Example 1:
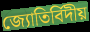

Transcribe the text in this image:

জ্যোতির্বিদীয়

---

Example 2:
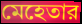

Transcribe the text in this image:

মেহেতার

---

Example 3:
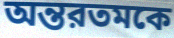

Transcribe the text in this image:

অন্তরতমকে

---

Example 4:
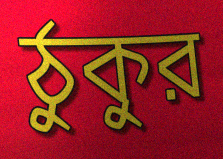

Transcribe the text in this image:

ঠুকুর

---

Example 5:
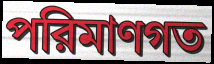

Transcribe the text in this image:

পরিমাণগত